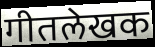
गीतलेखक